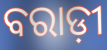
ବରାଡ଼ୀ